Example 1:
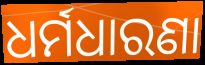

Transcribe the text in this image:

ଧର୍ମଧାରଣା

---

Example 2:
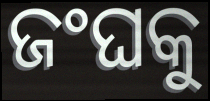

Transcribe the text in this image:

ଜଂଘକୁ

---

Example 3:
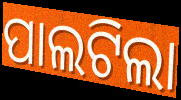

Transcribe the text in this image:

ପାଲଟିଲା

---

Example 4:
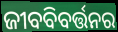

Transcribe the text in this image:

ଜୀବବିବର୍ତ୍ତନର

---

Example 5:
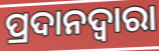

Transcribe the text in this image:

ପ୍ରଦାନଦ୍ୱାରା